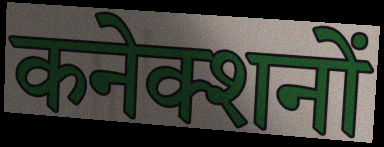
कनेक्शनों